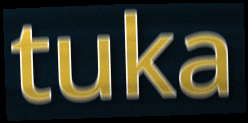
tuka